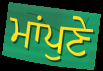
ਮਾਂਪੁਣੇ